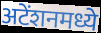
अटेंशनमध्ये